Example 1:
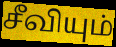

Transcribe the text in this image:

சீவியும்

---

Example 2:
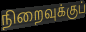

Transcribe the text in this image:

நிறைவுக்குப்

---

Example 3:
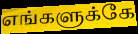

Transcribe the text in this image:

எங்களுக்கே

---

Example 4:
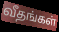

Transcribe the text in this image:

வீதங்கள்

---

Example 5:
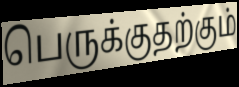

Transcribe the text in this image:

பெருக்குதற்கும்